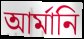
আর্মানি